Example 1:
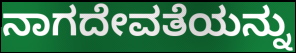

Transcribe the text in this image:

ನಾಗದೇವತೆಯನ್ನು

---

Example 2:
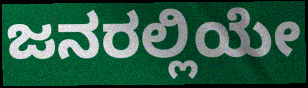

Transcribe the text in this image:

ಜನರಲ್ಲಿಯೇ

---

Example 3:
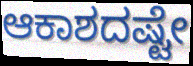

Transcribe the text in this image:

ಆಕಾಶದಷ್ಟೇ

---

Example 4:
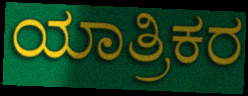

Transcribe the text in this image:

ಯಾತ್ರಿಕರ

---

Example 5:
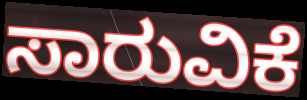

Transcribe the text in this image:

ಸಾರುವಿಕೆ